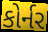
કોર્નર